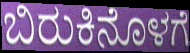
ಬಿರುಕಿನೊಳಗೆ